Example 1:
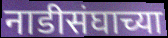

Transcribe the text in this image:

नाडीसंघाच्या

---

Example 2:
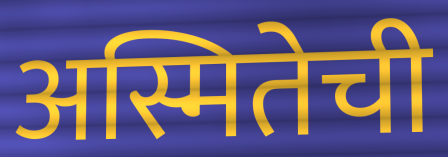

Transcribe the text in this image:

अस्मितेची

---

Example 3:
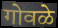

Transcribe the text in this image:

गोवळे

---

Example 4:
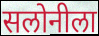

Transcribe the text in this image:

सलोनीला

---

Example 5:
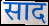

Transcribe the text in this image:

साद